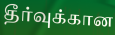
தீர்வுக்கான